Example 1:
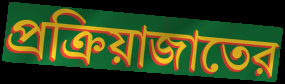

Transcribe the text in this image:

প্রক্রিয়াজাতের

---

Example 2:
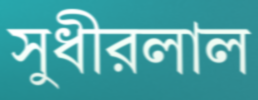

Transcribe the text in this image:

সুধীরলাল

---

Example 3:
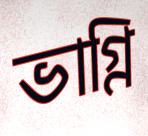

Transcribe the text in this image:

ভাগ্নি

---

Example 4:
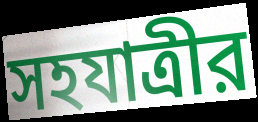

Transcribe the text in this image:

সহযাত্রীর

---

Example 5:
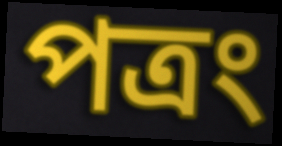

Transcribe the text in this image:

পত্রং